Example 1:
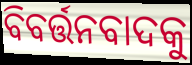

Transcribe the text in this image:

ବିବର୍ତ୍ତନବାଦକୁ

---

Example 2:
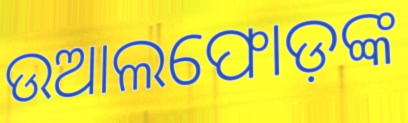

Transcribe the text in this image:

ଉଆଲଫୋଡ଼ଙ୍କ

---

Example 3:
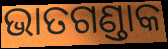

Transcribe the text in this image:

ଭାତଗଣ୍ଡାକ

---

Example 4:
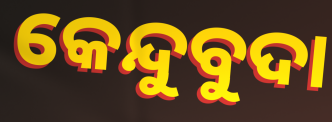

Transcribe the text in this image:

କେନ୍ଦୁବୁଦା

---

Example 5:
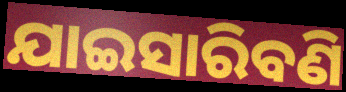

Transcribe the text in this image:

ଯାଇସାରିବଣି